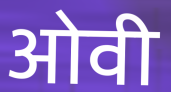
ओवी